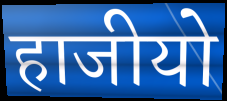
हाजीयो